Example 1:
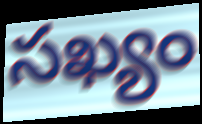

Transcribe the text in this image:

సఖ్యం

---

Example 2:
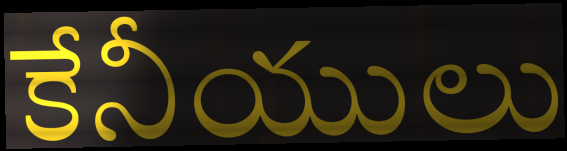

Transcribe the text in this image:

కేనీయులు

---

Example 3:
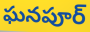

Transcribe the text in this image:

ఘనపూర్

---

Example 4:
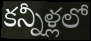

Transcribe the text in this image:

కన్నీళ్లలో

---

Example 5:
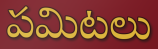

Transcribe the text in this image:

పమిటలు